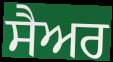
ਸੈਅਰ